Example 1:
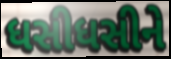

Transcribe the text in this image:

ધસીધસીને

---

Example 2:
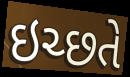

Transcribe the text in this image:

ઇચ્છતે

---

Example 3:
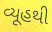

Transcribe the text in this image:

વ્યૂહથી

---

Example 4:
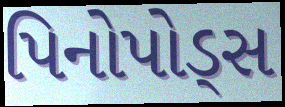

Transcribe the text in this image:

પિનોપોડ્સ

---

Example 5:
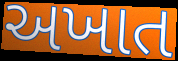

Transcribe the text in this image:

અખાત